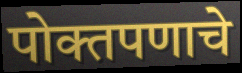
पोक्तपणाचे